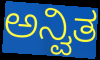
ಅನ್ವಿತ